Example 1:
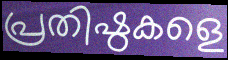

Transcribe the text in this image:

പ്രതിഷ്ഠകളെ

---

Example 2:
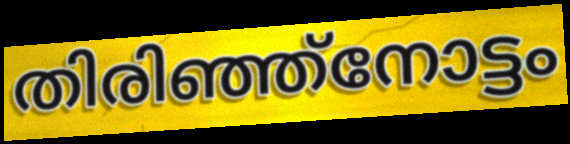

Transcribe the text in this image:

തിരിഞ്ഞ്നോട്ടം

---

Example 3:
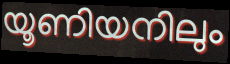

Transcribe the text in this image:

യൂണിയനിലും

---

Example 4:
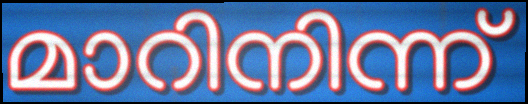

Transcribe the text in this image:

മാറിനിന്ന്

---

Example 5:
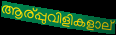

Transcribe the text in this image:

ആര്പ്പുവിളികളാല്